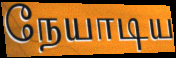
நேயாடிய